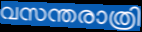
വസന്തരാത്രി